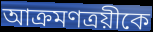
আক্রমণত্রয়ীকে